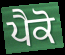
ਪੈਕੋ